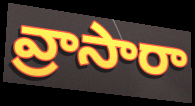
వ్రాసారా